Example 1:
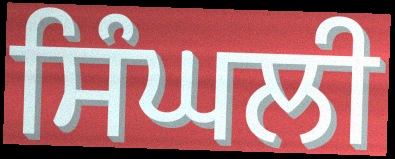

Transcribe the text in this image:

ਸਿੰਘਲੀ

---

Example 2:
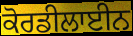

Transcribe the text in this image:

ਕੋਰਡੀਲਾਈਨ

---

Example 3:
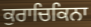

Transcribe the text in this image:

ਕੁਰਾਚਿਕਿਨਾ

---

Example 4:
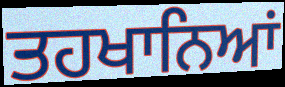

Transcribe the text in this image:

ਤਹਖਾਨਿਆਂ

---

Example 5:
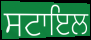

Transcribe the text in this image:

ਸਟਾਇਲ